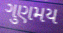
ગુણમય